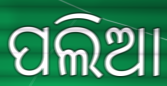
ପଲିଆ